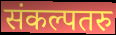
संकल्पतरु